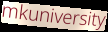
mkuniversity